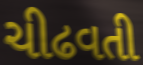
ચીઢવતી